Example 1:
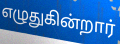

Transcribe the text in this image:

எழுதுகின்றார்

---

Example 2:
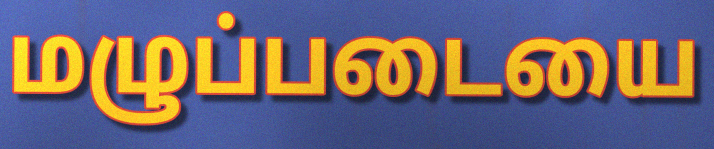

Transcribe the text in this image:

மழுப்படையை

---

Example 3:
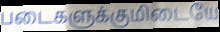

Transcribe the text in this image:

படைகளுக்குமிடையே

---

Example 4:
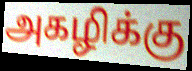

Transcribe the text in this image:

அகழிக்கு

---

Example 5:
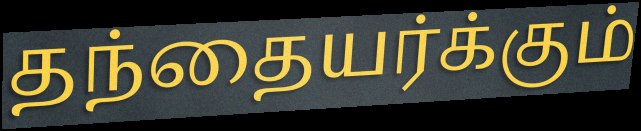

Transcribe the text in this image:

தந்தையர்க்கும்